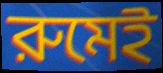
রুমেই